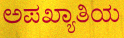
ಅಪಖ್ಯಾತಿಯ